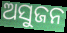
ଅସୁଜନ